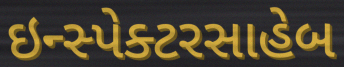
ઇન્સ્પેક્ટરસાહેબ